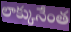
లాక్కునేంత